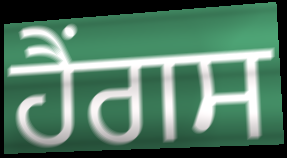
ਹੈਂਗਸ